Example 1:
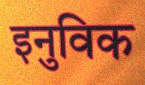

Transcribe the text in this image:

इनुविक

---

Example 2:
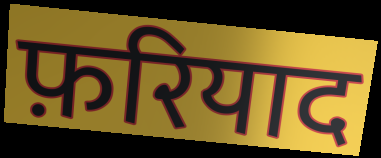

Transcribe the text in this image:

फ़रियाद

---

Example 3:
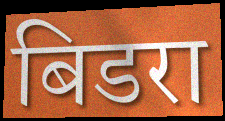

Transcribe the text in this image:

बिडरा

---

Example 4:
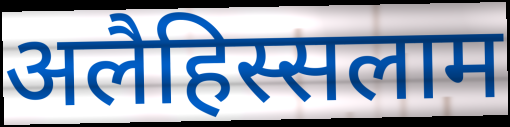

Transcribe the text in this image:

अलैहिस्सलाम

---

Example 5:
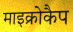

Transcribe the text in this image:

माइक्रोकैप